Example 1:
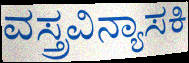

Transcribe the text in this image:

ವಸ್ತ್ರವಿನ್ಯಾಸಕಿ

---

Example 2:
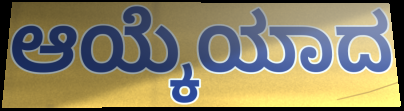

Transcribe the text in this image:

ಆಯ್ಕೆಯಾದ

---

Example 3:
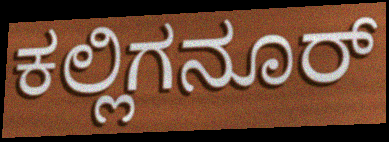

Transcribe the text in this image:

ಕಲ್ಲಿಗನೂರ್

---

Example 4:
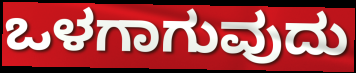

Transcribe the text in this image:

ಒಳಗಾಗುವುದು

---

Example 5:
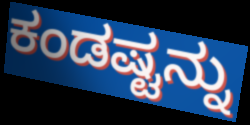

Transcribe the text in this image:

ಕಂಡಷ್ಟನ್ನು